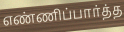
எண்ணிப்பார்த்த